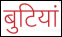
बुटियां